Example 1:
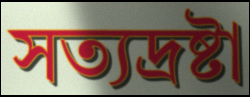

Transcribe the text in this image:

সত্যদ্রষ্টা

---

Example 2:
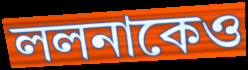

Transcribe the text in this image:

ললনাকেও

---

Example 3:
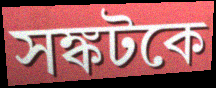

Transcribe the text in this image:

সঙ্কটকে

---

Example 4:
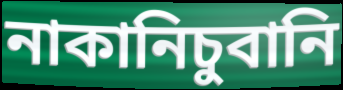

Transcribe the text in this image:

নাকানিচুবানি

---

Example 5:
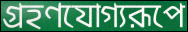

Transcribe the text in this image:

গ্রহণযোগ্যরূপে